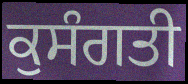
ਕੁਸੰਗਤੀ